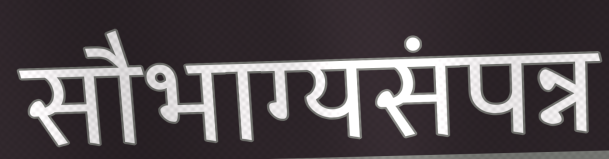
सौभाग्यसंपन्न